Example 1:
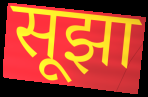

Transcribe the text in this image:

सूझा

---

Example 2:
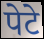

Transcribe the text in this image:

पेटे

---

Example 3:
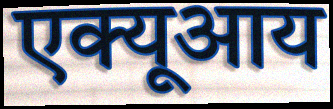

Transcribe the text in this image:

एक्यूआय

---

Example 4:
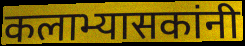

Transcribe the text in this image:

कलाभ्यासकांनी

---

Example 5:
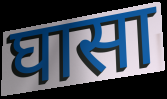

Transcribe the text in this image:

घासा